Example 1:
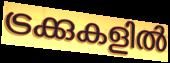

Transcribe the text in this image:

ട്രക്കുകളിൽ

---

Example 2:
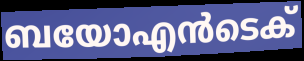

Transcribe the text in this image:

ബയോഎൻടെക്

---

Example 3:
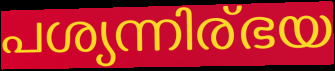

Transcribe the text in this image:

പശ്യന്നിര്ഭയ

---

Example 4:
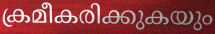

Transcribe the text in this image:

ക്രമീകരിക്കുകയും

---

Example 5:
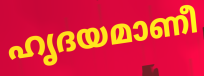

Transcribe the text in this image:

ഹൃദയമാണീ